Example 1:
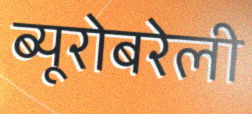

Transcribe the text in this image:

ब्यूरोबरेली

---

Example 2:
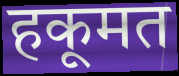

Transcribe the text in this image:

हकूमत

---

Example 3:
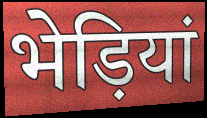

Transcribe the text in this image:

भेड़ियां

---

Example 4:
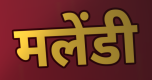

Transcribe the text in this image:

मलेंडी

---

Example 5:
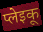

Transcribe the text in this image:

प्लेइकू